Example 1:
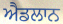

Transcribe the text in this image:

ਐਡਲਾਨ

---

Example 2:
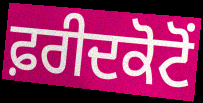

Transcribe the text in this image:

ਫ਼ਰੀਦਕੋਟੋਂ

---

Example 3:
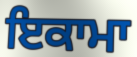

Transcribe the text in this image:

ਇਕਾਮਾ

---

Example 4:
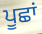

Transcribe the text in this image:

ਪੂਛਾਂ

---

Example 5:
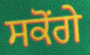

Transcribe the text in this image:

ਸਕੋਂਗੇ